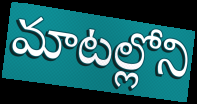
మాటల్లోని